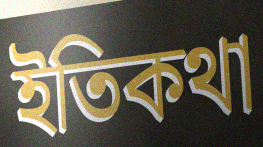
ইতিকথা